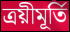
ত্ৰয়ীমূৰ্তি